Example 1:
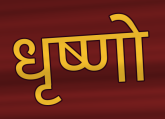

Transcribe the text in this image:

धृष्णो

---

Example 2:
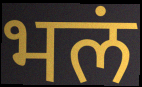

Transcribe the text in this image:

भलं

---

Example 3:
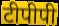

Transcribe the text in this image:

टीपीपी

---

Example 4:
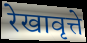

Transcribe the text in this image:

रेखावृत्ते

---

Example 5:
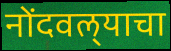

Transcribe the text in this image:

नोंदवल्याचा